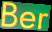
Ber